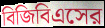
বিজিবিএসের